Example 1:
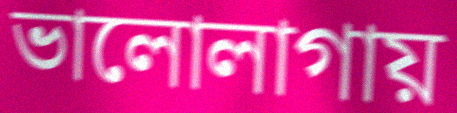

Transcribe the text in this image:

ভালোলাগায়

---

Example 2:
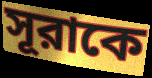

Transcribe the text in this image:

সূরাকে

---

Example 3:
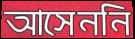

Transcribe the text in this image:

আসেননি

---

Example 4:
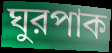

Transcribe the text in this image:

ঘুরপাক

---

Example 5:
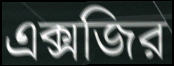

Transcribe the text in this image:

এক্সজির